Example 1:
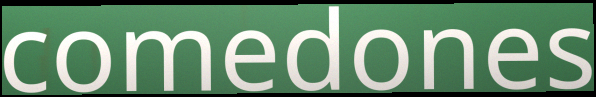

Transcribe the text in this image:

comedones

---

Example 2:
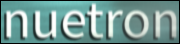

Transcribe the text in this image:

nuetron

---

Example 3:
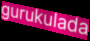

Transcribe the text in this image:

gurukulada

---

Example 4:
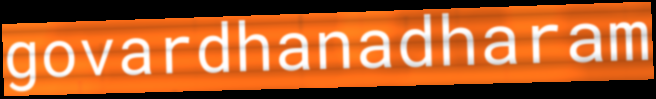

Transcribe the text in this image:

govardhanadharam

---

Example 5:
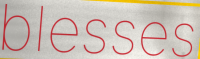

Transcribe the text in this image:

blesses